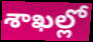
శాఖల్లో